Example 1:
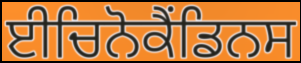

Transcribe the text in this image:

ਈਚਿਨੋਕੈਂਡਿਨਸ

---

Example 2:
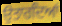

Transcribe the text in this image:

ਉਤਾਰਦਿਆਂ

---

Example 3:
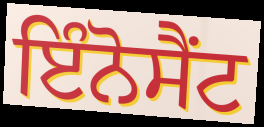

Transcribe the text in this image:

ਇੰਨੋਸੈਂਟ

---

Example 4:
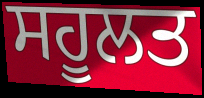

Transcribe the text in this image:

ਸਹੂਲਤ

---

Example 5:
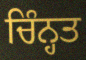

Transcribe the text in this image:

ਚਿੰਨ੍ਹਤ